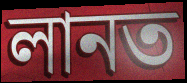
লানত